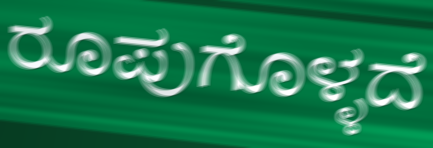
ರೂಪುಗೊಳ್ಳದೆ